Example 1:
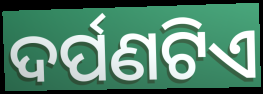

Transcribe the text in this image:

ଦର୍ପଣଟିଏ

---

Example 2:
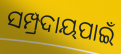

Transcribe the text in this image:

ସମ୍ପ୍ରଦାୟପାଇଁ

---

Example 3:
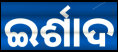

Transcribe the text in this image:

ଇର୍ଶାଦ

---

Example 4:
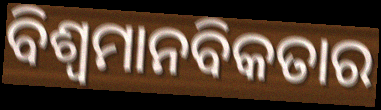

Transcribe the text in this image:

ବିଶ୍ଵମାନବିକତାର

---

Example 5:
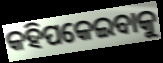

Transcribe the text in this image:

କହିପକେଇବାକୁ